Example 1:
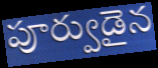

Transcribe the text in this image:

పూర్వుడైన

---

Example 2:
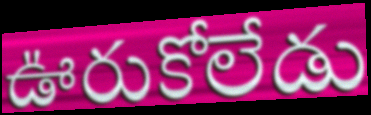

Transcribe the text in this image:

ఊరుకోలేడు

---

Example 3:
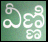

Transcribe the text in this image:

వీణ్ణి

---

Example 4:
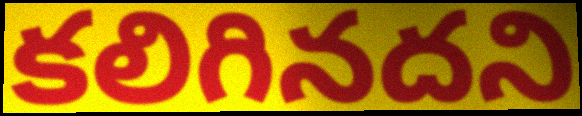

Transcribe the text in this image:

కలిగినదని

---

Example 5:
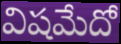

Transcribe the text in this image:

విషమేదో